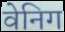
वेनिग